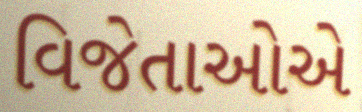
વિજેતાઓએ